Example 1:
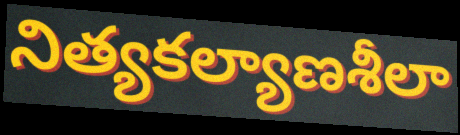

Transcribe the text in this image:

నిత్యకల్యాణశీలా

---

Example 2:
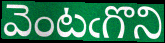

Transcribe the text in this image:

వెంటఁగొని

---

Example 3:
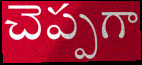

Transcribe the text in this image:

చెప్పగా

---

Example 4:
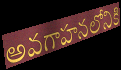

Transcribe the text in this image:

అవగాహనలోనికి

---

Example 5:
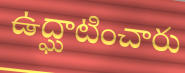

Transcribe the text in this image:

ఉద్ఘాటించారు